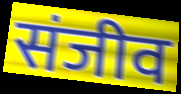
संजीव